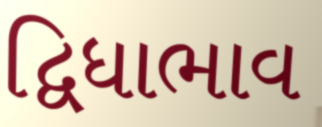
દ્વિધાભાવ